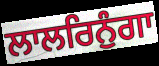
ਲਾਲਰਿਨੁੰਗਾ